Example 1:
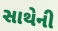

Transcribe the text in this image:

સાથેની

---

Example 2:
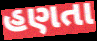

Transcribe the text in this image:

હણતા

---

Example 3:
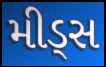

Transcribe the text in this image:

મીડ્સ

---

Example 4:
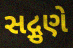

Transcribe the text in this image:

સદ્ગુણે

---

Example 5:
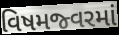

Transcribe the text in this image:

વિષમજ્વરમાં